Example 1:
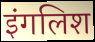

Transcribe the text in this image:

इंगलिश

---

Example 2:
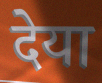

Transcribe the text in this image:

देया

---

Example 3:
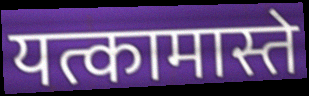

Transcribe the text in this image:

यत्कामास्ते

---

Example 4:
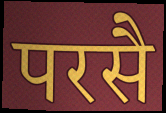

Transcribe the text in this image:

परसै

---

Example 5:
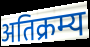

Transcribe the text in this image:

अतिक्रम्य